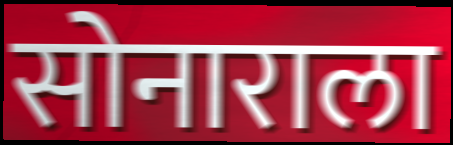
सोनाराला